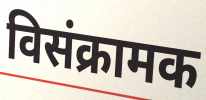
विसंक्रामक